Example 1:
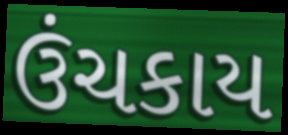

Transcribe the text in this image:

ઉંચકાય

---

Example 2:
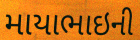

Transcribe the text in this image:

માયાભાઇની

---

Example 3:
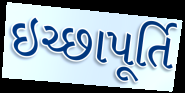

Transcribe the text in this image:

ઇચ્છાપૂર્તિ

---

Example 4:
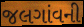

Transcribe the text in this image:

જલગાંવની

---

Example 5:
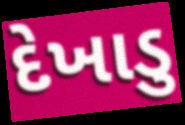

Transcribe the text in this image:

દેખાડુ